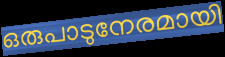
ഒരുപാടുനേരമായി